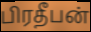
பிரதீபன்